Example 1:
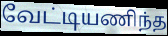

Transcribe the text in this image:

வேட்டியணிந்த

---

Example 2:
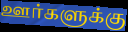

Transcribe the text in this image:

ஊர்களுக்கு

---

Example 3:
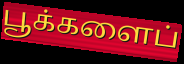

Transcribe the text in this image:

பூக்களைப்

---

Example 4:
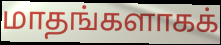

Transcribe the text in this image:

மாதங்களாகக்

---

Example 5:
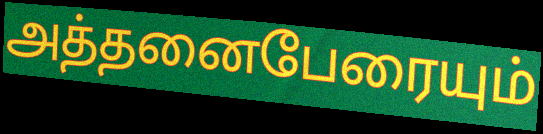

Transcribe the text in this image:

அத்தனைபேரையும்